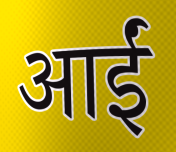
आईं